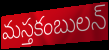
మస్తకంబులన్